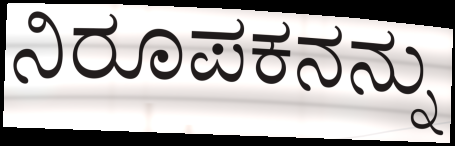
ನಿರೂಪಕನನ್ನು